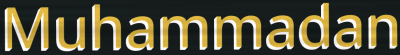
Muhammadan